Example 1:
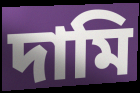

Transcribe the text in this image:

দামি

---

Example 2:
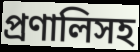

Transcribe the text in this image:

প্রণালিসহ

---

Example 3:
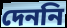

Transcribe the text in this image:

দেননি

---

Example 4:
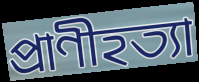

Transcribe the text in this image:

প্রাণীহত্যা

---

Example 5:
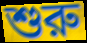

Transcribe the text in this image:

শুরু